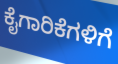
ಕೈಗಾರಿಕೆಗಳಿಗೆ